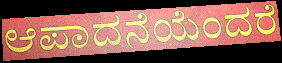
ಆಪಾದನೆಯೆಂದರೆ